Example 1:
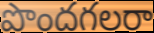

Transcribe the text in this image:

పొందగలరా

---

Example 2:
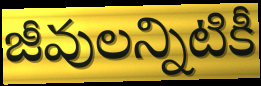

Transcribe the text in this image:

జీవులన్నిటికీ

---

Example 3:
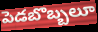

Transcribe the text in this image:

పెడబొబ్బలూ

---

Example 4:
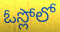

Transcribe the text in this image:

ఓస్లోలో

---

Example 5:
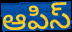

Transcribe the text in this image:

ఆపిస్